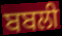
ਬਬਲੀ